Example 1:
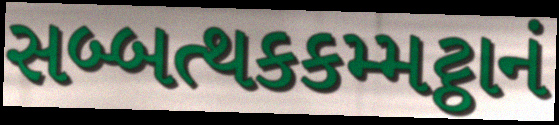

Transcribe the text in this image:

સબ્બત્થકકમ્મટ્ઠાનં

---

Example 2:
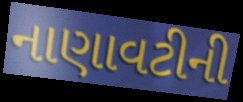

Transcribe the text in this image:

નાણાવટીની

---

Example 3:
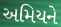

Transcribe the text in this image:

અમિયને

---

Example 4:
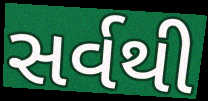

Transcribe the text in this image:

સર્વથી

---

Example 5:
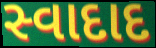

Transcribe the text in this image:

સ્વાદાદ